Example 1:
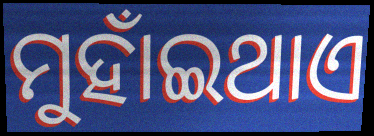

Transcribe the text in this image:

ମୁହାଁଇଥାଏ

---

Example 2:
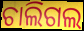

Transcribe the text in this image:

ଚାଲିଗଲ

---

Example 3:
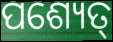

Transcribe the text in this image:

ପଶ୍ୟେତ୍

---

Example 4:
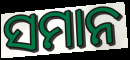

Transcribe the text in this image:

ସମାନ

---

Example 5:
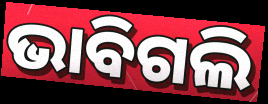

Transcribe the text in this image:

ଭାବିଗଲି